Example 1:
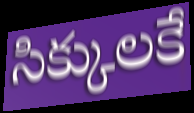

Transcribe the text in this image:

సిక్కులకే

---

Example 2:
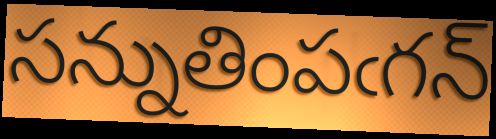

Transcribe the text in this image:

సన్నుతింపఁగన్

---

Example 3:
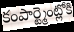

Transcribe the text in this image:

కంపార్ట్మెంట్లోకి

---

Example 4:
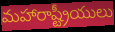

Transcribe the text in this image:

మహారాష్ట్రీయులు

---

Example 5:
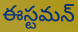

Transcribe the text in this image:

ఈస్టమన్